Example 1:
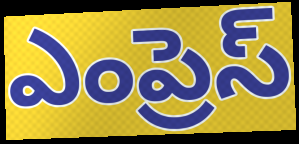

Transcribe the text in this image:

ఎంప్రెస్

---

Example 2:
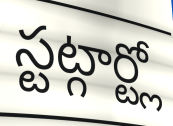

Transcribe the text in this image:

స్టట్గార్ట్లో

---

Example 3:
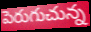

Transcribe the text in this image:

పెరుగుచున్న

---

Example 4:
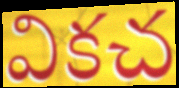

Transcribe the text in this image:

వికచ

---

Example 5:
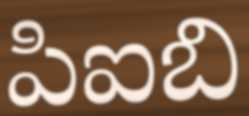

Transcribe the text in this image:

పిఐబి